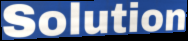
Solution